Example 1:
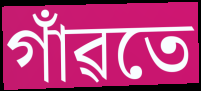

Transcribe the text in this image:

গাঁৱতে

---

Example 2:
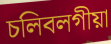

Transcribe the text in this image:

চলিবলগীয়া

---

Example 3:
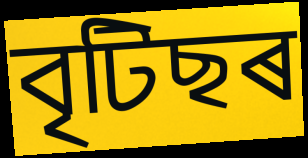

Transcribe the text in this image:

বৃটিছৰ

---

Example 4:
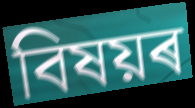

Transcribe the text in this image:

বিষয়ৰ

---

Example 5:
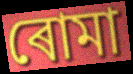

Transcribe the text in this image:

ৰোমা